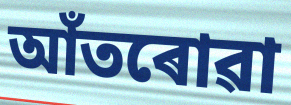
আঁতৰোৱা